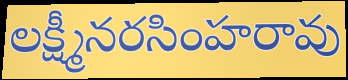
లక్ష్మీనరసింహరావు